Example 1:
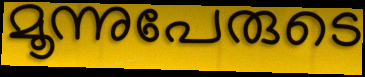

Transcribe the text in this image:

മൂന്നുപേരുടെ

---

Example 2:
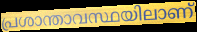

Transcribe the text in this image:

പ്രശാന്താവസ്ഥയിലാണ്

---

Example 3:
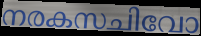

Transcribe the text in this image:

നരകസചിവോ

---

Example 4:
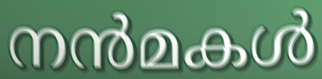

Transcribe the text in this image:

നൻമകൾ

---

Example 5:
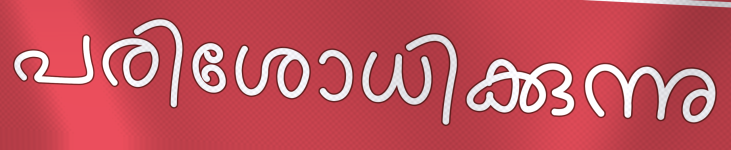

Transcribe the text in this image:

പരിശോധിക്കുന്നു